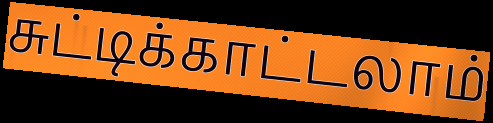
சுட்டிக்காட்டலாம்